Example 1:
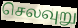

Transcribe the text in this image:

செலவுறு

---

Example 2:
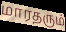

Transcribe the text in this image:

மாரதரும்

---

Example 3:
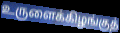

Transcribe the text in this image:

உருளைக்கிழங்குத்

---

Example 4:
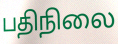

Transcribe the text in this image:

பதிநிலை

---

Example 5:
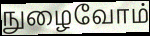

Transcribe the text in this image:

நுழைவோம்